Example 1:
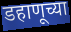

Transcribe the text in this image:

डहाणूच्या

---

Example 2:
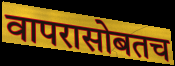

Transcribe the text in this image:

वापरासोबतच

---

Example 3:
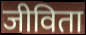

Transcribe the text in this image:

जीविता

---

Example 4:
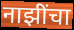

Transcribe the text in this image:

नाझींचा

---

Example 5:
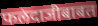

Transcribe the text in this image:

फलंदाजीबाबत